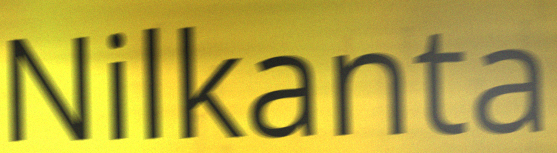
Nilkanta